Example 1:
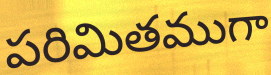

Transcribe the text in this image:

పరిమితముగా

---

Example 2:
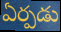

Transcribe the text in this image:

ఏర్పడు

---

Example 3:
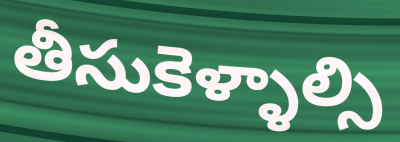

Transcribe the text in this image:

తీసుకెళ్ళాల్సి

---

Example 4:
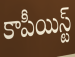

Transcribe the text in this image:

కాపీయిస్ట్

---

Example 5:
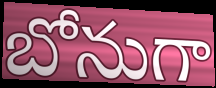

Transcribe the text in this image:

బోనుగా